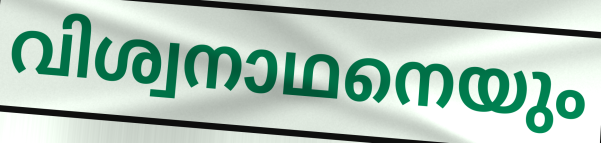
വിശ്വനാഥനെയും